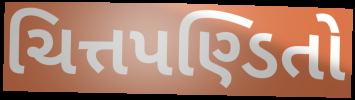
ચિત્તપણ્ડિતો